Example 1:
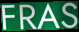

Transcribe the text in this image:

FRAS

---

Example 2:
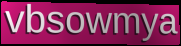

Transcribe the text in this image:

vbsowmya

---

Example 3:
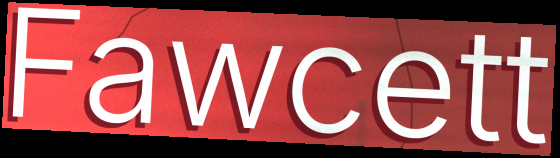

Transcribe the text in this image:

Fawcett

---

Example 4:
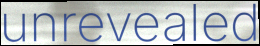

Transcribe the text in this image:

unrevealed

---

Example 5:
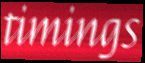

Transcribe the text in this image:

timings